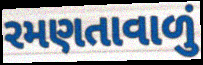
રમણતાવાળું